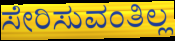
ಸೇರಿಸುವಂತಿಲ್ಲ